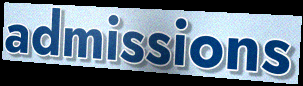
admissions